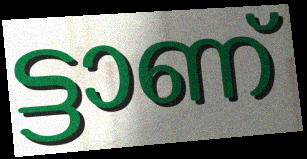
ട്ടാണ്